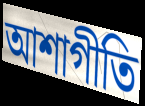
আশাগীতি